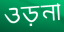
ওড়না